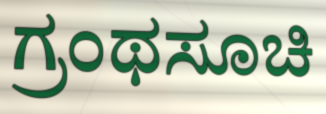
ಗ್ರಂಥಸೂಚಿ